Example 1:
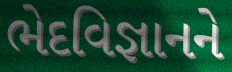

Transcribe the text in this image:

ભેદવિજ્ઞાનને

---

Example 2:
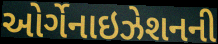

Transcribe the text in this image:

ઓર્ગેનાઇઝેશનની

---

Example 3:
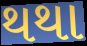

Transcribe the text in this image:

થથા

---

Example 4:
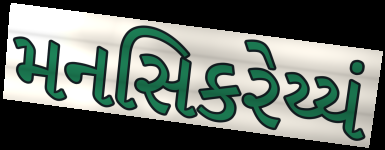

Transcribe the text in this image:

મનસિકરેય્યં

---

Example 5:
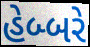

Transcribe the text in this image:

હેબ્બરે